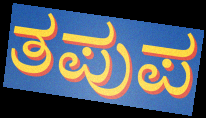
ತಪುಪ